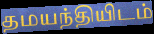
தமயந்தியிடம்